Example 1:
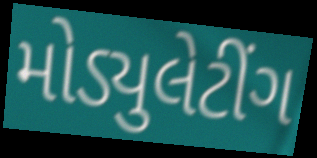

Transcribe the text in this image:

મોડ્યુલેટીંગ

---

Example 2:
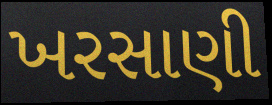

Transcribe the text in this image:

ખરસાણી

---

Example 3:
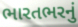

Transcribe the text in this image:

ભારતભરનું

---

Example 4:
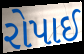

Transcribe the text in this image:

રોપાઈ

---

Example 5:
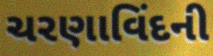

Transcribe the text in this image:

ચરણાવિંદની